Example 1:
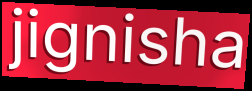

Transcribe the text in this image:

jignisha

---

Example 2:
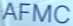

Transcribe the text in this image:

AFMC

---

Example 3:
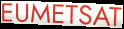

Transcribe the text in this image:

EUMETSAT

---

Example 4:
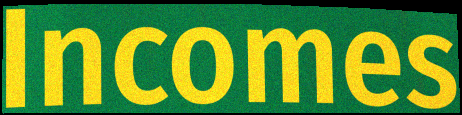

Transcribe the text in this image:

Incomes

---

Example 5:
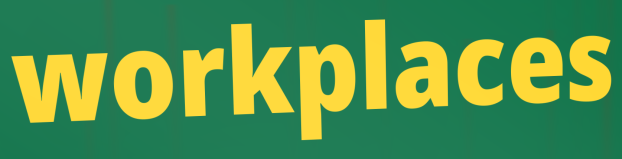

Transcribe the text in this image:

workplaces